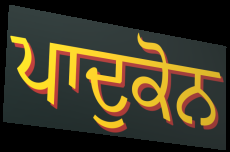
ਪਾਦੁਕੋਨ